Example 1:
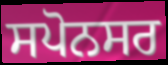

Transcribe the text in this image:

ਸਪੋਨਸਰ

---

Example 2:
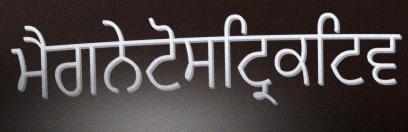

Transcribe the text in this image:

ਮੈਗਨੇਟੋਸਟ੍ਰਿਕਟਿਵ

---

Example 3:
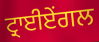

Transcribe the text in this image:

ਟ੍ਰਾਈਏਂਗਲ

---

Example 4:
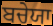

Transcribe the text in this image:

ਬਚੇਯਾ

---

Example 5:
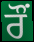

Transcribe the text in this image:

ਰੌਂ